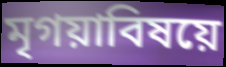
মৃগয়াবিষয়ে